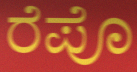
ರೆಪೊ